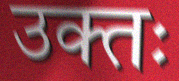
उक्तः